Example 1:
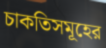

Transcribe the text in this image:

চাকতিসমূহের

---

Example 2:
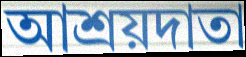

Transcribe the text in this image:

আশ্রয়দাতা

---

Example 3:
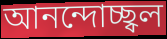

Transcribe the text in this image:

আনন্দোচ্ছ্বল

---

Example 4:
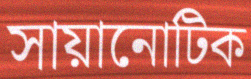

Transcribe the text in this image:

সায়ানোটিক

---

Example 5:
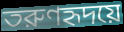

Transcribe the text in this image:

তরুণহৃদয়ে